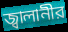
জ্বালানীর